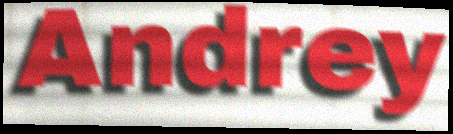
Andrey